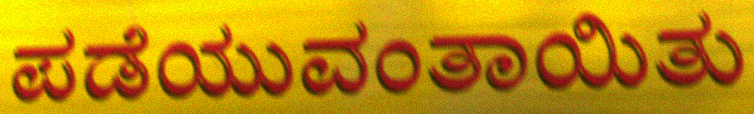
ಪಡೆಯುವಂತಾಯಿತು